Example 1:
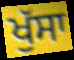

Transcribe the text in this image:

ਖੁੱਸਾ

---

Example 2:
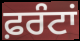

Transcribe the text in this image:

ਫ਼ਰੰਟਾਂ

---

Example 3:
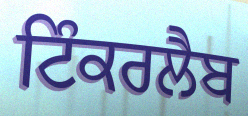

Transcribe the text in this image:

ਟਿੰਕਰਲੈਬ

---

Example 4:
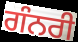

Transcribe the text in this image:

ਗੰਨਰੀ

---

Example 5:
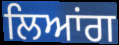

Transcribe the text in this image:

ਲਿਆਂਗ